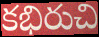
కభిరుచి